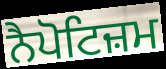
ਨੈਪੋਟਿਜ਼ਮ